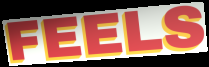
FEELS